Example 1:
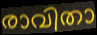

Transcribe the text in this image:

രാവിതാ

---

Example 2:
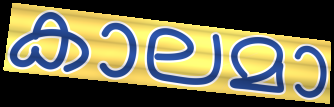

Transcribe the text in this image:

കാലമാ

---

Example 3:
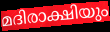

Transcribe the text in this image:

മദിരാക്ഷിയും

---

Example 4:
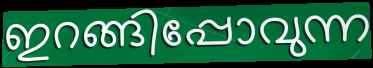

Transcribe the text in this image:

ഇറങ്ങിപ്പോവുന്ന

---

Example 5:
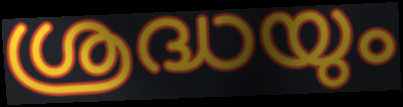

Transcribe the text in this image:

ശ്രദ്ധയും